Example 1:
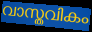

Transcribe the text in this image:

വാസ്തവികം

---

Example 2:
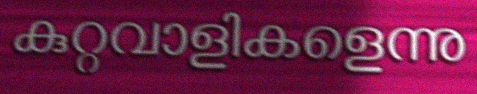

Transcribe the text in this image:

കുറ്റവാളികളെന്നു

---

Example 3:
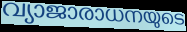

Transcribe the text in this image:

വ്യാജാരാധനയുടെ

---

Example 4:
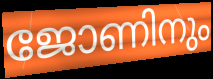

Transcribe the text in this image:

ജോണിനും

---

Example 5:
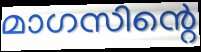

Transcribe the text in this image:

മാഗസിന്റെ